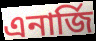
এনার্জি